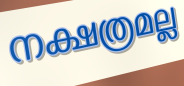
നക്ഷത്രമല്ല